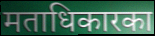
मताधिकारका